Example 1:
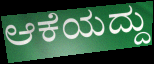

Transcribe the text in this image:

ಆಕೆಯದ್ದು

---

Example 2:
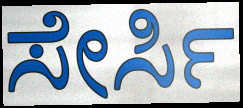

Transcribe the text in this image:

ಸೇರ್ಸಿ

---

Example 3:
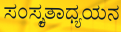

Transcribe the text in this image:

ಸಂಸ್ಕೃತಾಧ್ಯಯನ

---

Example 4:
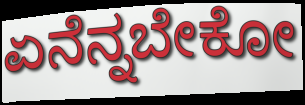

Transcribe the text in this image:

ಏನೆನ್ನಬೇಕೋ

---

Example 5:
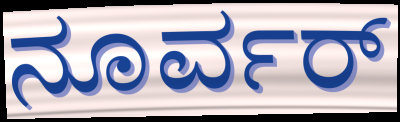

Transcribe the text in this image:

ನೂರ್ವರ್